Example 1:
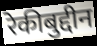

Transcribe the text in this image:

रेकीबुद्दीन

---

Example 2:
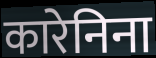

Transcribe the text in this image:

कारेनिना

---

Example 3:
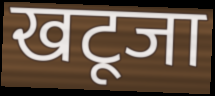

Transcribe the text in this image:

खटूजा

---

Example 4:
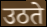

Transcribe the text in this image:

उठते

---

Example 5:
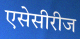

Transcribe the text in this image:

एसेसीरीज